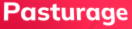
Pasturage